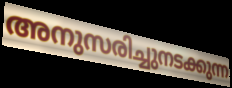
അനുസരിച്ചുനടക്കുന്ന